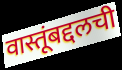
वास्तूंबद्दलची